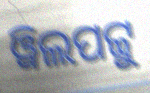
ୱିଲପଟ୍ଟୁ